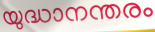
യുദ്ധാനന്തരം